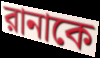
রানাকে